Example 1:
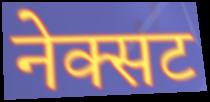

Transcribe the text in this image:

नेक्सट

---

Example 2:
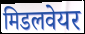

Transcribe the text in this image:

मिडलवेयर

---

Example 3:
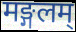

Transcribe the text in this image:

मङ्गलम्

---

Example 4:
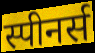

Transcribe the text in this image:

स्पीनर्स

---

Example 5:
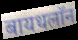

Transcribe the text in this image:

बायथलॉन